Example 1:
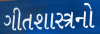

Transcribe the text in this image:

ગીતશાસ્ત્રનો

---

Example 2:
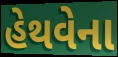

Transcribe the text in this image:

હેથવેના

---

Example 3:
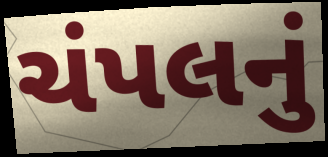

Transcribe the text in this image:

ચંપલનું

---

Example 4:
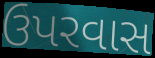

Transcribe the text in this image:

ઉપરવાસ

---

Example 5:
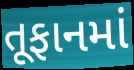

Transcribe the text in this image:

તૂફાનમાં